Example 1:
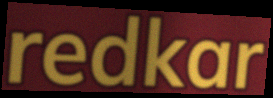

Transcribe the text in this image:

redkar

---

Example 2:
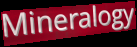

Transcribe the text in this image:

Mineralogy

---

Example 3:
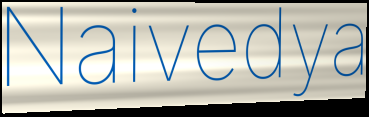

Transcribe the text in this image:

Naivedya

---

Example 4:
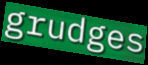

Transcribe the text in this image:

grudges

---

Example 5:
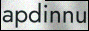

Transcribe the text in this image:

apdinnu